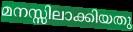
മനസ്സിലാക്കിയതു